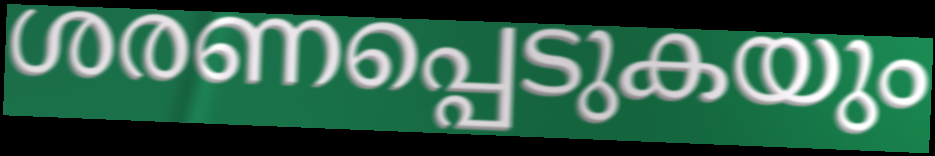
ശരണപ്പെടുകയും